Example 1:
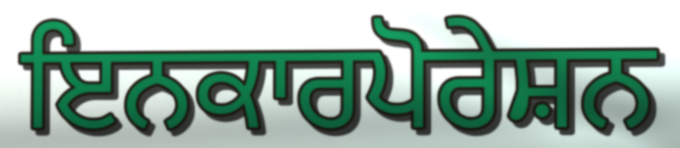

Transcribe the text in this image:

ਇਨਕਾਰਪੋਰੇਸ਼ਨ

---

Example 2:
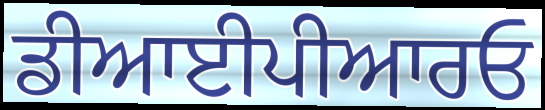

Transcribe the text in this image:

ਡੀਆਈਪੀਆਰਓ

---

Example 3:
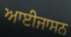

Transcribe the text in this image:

ਆਈਜਾਸਨ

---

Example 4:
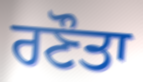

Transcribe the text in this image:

ਰਣੌਤਾ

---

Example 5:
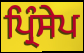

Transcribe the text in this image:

ਪ੍ਰਿੰਸੇਪ